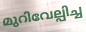
മുറിവേല്പിച്ച